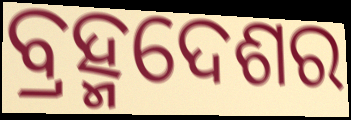
ବ୍ରହ୍ମଦେଶର